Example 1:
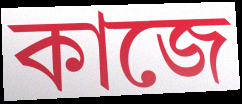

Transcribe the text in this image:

কাজে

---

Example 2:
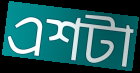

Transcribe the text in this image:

এশটা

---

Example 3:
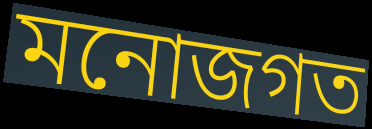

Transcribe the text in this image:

মনোজগত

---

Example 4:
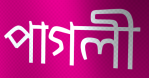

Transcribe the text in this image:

পাগলী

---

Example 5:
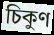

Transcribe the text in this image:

চিকুণ